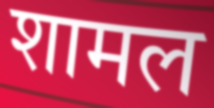
शामल